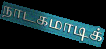
நாடகமாடிக்